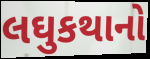
લઘુકથાનો